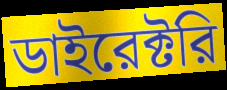
ডাইরেক্টরি